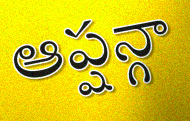
ఆప్షన్గా